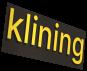
klining